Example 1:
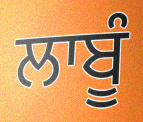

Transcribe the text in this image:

ਲਾਬੂੰ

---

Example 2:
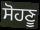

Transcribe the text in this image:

ਸੋਹਣੂ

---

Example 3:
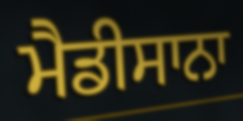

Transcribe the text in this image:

ਮੈਡੀਸਾਨਾ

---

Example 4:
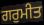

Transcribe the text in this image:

ਗਰੁਮੀਤ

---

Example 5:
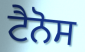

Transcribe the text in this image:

ਟੈਨੋਸ